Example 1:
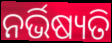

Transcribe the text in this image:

ନର୍ଭିଷ୍ୟତି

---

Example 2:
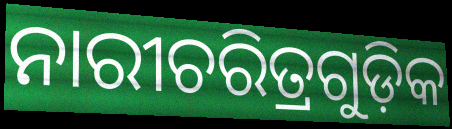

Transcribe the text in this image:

ନାରୀଚରିତ୍ରଗୁଡ଼ିକ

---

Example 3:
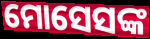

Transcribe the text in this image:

ମୋସେସଙ୍କ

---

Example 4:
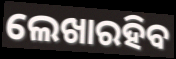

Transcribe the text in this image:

ଲେଖାରହିବ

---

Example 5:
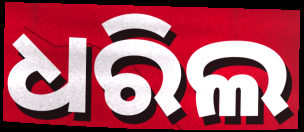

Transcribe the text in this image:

ଧରିଲ